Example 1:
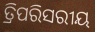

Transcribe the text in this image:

ତ୍ରିପରିସରୀୟ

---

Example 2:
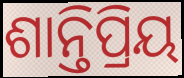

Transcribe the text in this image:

ଶାନ୍ତିପ୍ରିୟ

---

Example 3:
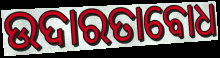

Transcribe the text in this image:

ଉଦାରତାବୋଧ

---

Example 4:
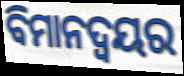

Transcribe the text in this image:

ବିମାନଦ୍ବୟର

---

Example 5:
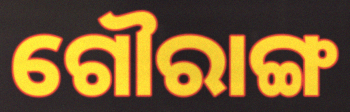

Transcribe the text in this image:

ଗୌରାଙ୍ଗ